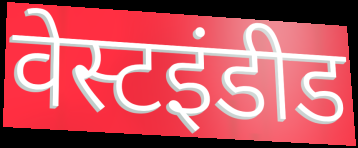
वेस्टइंडीड